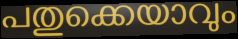
പതുക്കെയാവും